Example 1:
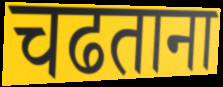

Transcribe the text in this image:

चढताना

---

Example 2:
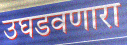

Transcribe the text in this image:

उघडवणारा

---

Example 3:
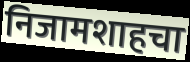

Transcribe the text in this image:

निजामशाहचा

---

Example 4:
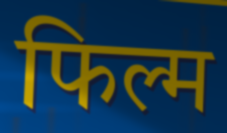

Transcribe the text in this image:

फिल्म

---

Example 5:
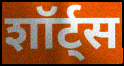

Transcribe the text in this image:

शॉर्ट्स